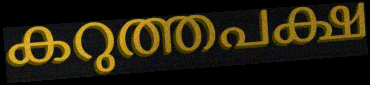
കറുത്തപക്ഷ